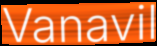
Vanavil